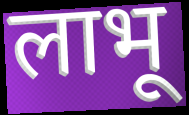
लाभू